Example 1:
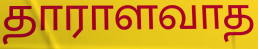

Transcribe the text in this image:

தாராளவாத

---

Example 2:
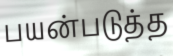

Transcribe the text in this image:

பயன்படுத்த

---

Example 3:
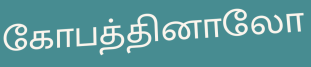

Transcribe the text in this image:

கோபத்தினாலோ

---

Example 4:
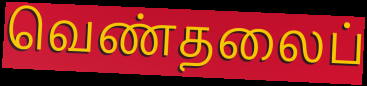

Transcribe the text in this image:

வெண்தலைப்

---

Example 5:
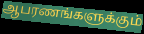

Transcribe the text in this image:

ஆபரணங்களுக்கும்